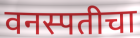
वनस्पतीचा